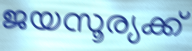
ജയസൂര്യക്ക്